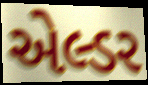
એલ્ડર